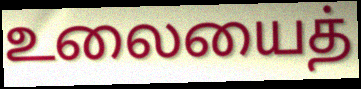
உலையைத்